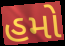
હમો